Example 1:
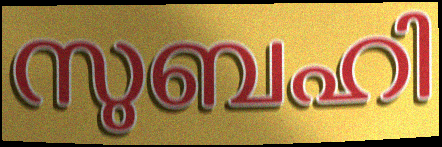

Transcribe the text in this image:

സുബഹി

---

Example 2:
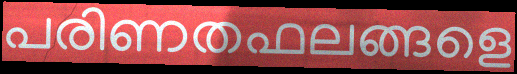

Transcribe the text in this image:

പരിണതഫലങ്ങളെ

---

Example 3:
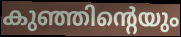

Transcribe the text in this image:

കുഞ്ഞിന്റെയും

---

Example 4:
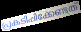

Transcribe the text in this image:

പ്രകടിപ്പിക്കേണ്ടത്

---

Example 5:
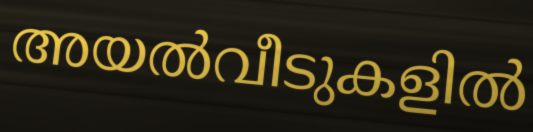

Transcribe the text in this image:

അയൽവീടുകളിൽ